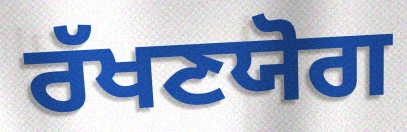
ਰੱਖਣਯੋਗ